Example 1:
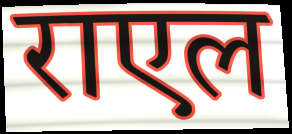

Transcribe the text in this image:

राएल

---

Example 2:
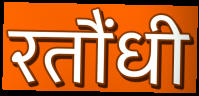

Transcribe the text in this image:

रतौंधी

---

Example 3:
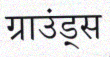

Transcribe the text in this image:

ग्राउंड्स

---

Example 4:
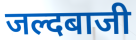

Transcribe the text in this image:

जल्दबाजी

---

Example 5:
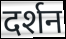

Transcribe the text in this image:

दर्शन